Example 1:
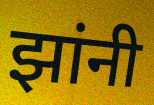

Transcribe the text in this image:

झांनी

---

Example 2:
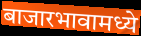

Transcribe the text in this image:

बाजारभावामध्ये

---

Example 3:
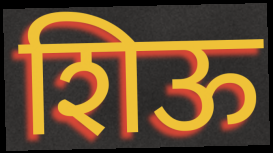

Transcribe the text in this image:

शिऊ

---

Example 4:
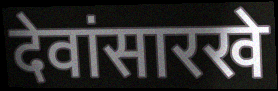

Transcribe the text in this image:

देवांसारखे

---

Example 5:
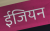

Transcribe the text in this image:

ईजियन